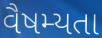
વૈષમ્યતા